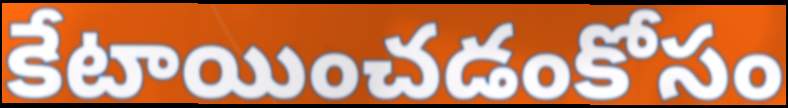
కేటాయించడంకోసం